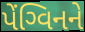
પેંગ્વિનને